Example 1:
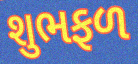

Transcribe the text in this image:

શુભફળ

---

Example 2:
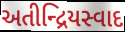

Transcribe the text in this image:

અતીન્દ્રિયસ્વાદ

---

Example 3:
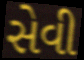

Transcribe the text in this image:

સેવી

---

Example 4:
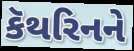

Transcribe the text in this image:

કૅથરિનને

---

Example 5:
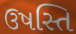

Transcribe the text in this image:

ઉષસ્તિ